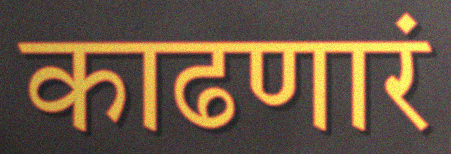
काढणारं